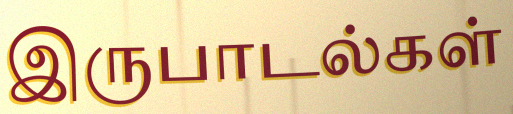
இருபாடல்கள்